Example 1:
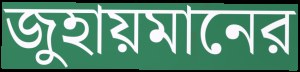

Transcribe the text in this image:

জুহায়মানের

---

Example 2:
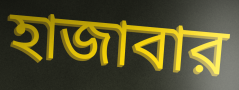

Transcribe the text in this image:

হাজাবার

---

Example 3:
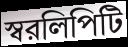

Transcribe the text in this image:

স্বরলিপিটি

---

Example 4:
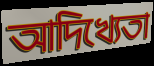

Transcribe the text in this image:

আদিখ্যেতা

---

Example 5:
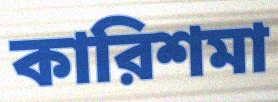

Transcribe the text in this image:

কারিশমা